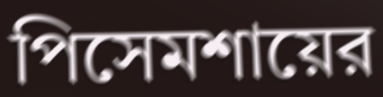
পিসেমশায়ের